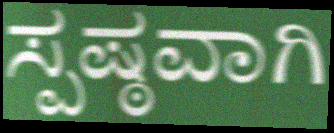
ಸ್ಪಷ್ಠವಾಗಿ